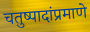
चतुष्पादांप्रमाणे